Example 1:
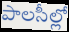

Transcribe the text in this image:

పాలసీల్లో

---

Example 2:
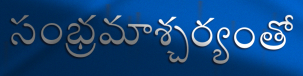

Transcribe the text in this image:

సంభ్రమాశ్చర్యంతో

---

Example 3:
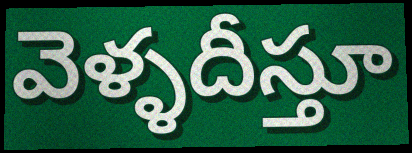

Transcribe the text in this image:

వెళ్ళదీస్తూ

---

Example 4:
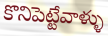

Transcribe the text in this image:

కొనిపెట్టేవాళ్ళు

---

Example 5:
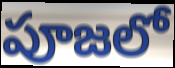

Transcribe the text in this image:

పూజలో